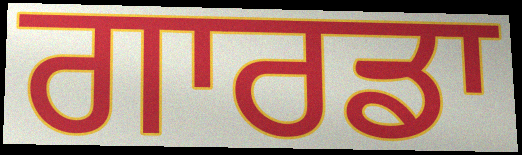
ਗਾਰਡਾ